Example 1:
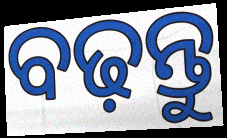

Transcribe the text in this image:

ବଢ଼ନ୍ତୁ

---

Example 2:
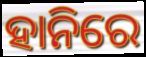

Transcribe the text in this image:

ହାନିରେ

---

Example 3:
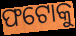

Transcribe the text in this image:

ଫଟୋକୁ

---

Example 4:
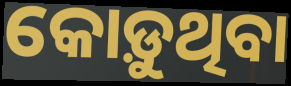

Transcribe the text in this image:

କୋଡ଼ୁଥିବା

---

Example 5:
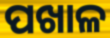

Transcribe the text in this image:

ପଖାଳ